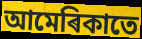
আমেৰিকাতে